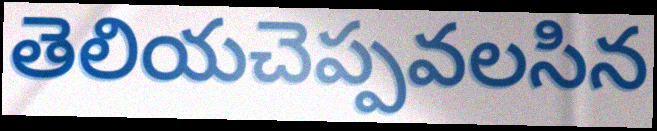
తెలియచెప్పవలసిన